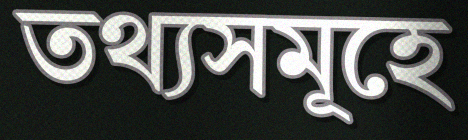
তথ্যসমূহে